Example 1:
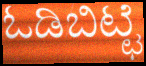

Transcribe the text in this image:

ಓಡಿಬಿಟ್ಟೆ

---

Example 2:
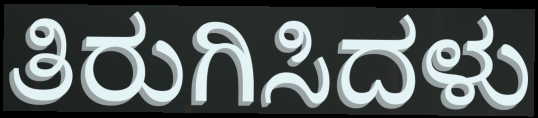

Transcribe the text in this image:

ತಿರುಗಿಸಿದಳು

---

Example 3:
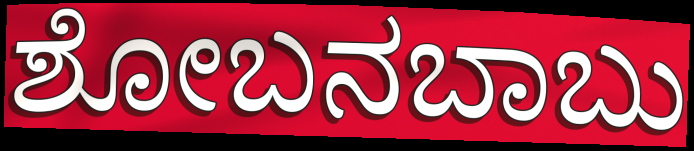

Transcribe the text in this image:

ಶೋಬನಬಾಬು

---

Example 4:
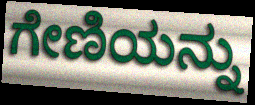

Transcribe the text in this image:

ಗೇಣಿಯನ್ನು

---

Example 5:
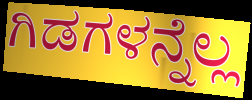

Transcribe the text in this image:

ಗಿಡಗಳನ್ನೆಲ್ಲ